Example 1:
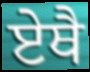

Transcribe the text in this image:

ਏਥੈ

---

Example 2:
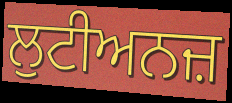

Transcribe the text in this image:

ਲੁਟੀਅਨਜ਼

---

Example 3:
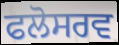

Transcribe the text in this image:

ਫਲੋਸਰਵ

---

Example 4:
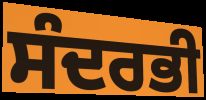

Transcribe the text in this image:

ਸੰਦਰਭੀ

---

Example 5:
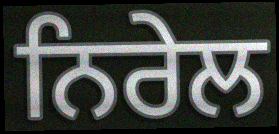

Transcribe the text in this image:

ਨਿਰੇਲ